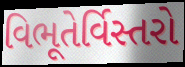
વિભૂતેર્વિસ્તરો